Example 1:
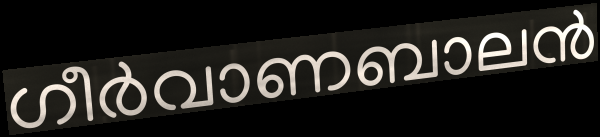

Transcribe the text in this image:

ഗീർവാണബാലൻ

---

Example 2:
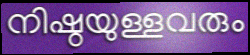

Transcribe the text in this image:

നിഷ്ഠയുള്ളവരും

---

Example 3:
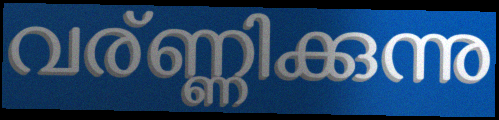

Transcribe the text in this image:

വര്ണ്ണിക്കുന്നു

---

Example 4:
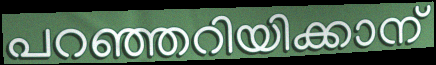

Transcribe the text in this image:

പറഞ്ഞറിയിക്കാന്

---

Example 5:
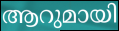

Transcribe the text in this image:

ആറുമായി